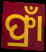
ଫ୍ରାଁ